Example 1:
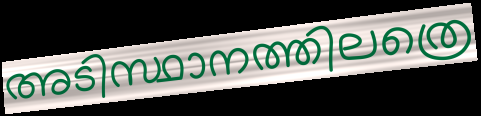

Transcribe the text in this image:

അടിസ്ഥാനത്തിലത്രെ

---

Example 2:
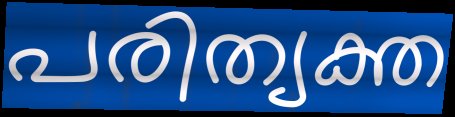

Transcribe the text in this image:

പരിത്യക്ത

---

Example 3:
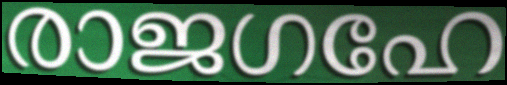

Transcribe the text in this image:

രാജഗഹേ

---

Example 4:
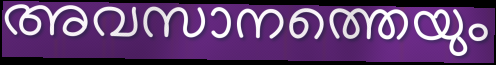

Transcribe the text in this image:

അവസാനത്തെയും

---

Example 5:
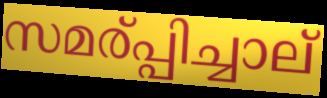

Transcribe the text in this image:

സമര്പ്പിച്ചാല്